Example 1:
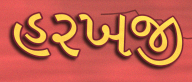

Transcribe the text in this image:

હરખજી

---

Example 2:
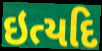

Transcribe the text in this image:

ઇત્યદિ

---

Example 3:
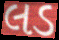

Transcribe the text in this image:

લડ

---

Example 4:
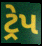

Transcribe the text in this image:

ટ્રેપ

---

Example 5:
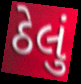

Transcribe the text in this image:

ઠેલું